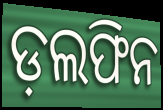
ଡ଼ଲଫିନ